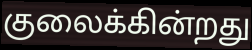
குலைக்கின்றது